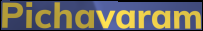
Pichavaram